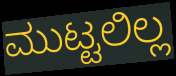
ಮುಟ್ಟಲಿಲ್ಲ